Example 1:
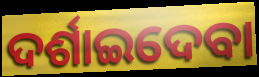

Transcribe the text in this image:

ଦର୍ଶାଇଦେବା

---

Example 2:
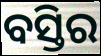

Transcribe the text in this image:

ବସ୍ତିର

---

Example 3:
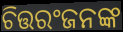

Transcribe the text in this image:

ଚିତ୍ତରଂଜନଙ୍କ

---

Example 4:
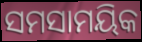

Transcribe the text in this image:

ସମସାମୟିକ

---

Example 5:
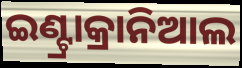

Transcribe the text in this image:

ଇଣ୍ଟ୍ରାକ୍ରାନିଆଲ